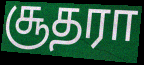
சூதரா